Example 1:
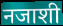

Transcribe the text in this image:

नजाशी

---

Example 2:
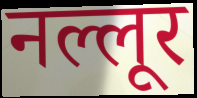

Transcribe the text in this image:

नल्लूर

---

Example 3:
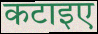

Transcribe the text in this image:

कटाइए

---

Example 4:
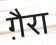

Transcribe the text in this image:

ग़ैरा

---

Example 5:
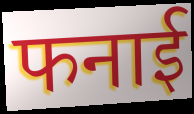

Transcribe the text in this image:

फनाई